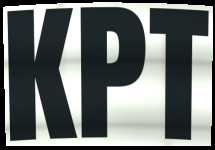
KPT